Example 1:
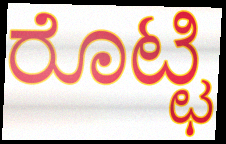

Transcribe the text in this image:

ರೊಟ್ಟಿ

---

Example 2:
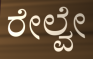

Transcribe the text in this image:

ರೇಲ್ವೇ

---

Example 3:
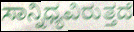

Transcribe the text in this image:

ಸಾನ್ನಿಧ್ಯವಿರುತ್ತದೆ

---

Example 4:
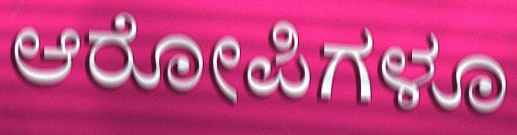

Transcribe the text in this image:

ಆರೋಪಿಗಳೂ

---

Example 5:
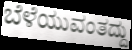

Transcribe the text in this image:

ಬೆಳೆಯುವಂತದ್ದು